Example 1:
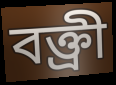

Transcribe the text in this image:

বক্ত্রী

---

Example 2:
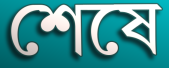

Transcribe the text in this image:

শেষে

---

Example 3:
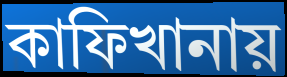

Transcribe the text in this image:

কাফিখানায়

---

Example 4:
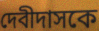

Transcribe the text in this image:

দেবীদাসকে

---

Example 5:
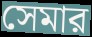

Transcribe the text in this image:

সেমার